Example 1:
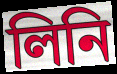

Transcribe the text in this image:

লিনি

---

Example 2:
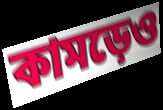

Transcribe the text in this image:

কামড়েও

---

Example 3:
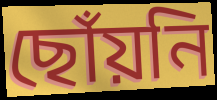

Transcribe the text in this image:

ছোঁয়নি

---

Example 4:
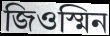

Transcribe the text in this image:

জিওস্মিন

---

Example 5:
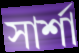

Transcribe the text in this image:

সার্শা